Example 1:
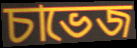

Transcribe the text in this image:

চাভেজ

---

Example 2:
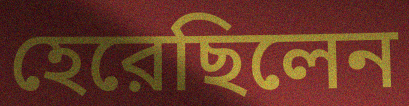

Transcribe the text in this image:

হেরেছিলেন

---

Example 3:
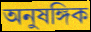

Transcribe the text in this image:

অনুষঙ্গিক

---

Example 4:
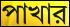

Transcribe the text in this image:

পাখার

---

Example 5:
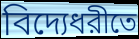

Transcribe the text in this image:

বিদ্যেধরীতে